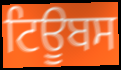
ਟਿਊਬਸ